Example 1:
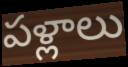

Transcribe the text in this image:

పళ్లాలు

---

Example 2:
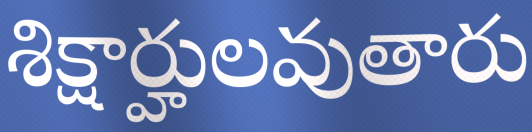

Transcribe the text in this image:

శిక్షార్హులవుతారు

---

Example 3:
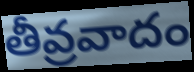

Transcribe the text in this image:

తీవ్రవాదం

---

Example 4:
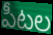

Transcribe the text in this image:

పీటల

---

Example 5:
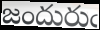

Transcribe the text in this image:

జందురుఁ